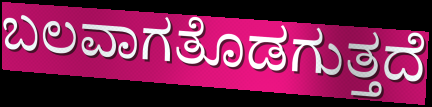
ಬಲವಾಗತೊಡಗುತ್ತದೆ